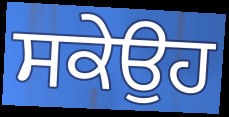
ਸਕੇਉਹ